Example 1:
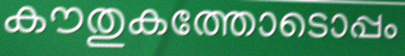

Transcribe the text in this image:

കൗതുകത്തോടൊപ്പം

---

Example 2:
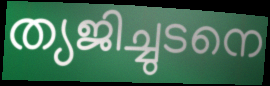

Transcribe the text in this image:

ത്യജിച്ചുടനെ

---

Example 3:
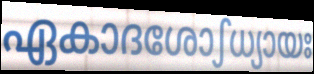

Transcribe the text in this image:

ഏകാദശോഽധ്യായഃ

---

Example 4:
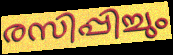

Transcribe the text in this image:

രസിപ്പിച്ചും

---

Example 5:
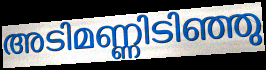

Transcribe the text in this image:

അടിമണ്ണിടിഞ്ഞു